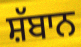
ਸ਼ੱਬਾਨ